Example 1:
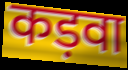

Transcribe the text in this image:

कड़वा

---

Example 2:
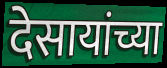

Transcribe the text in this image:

देसायांच्या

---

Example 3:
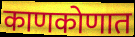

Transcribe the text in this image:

काणकोणात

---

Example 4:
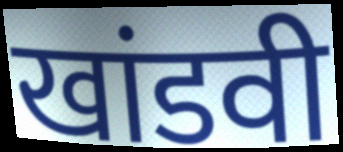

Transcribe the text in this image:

खांडवी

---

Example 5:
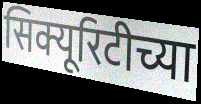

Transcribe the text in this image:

सिक्यूरिटीच्या